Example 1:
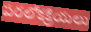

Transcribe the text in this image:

పరలోకక్రియలు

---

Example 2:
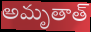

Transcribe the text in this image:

అమృతాత్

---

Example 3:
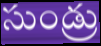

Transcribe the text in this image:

సుండ్రు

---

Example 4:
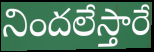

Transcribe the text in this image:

నిందలేస్తారే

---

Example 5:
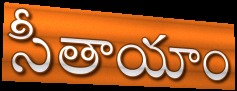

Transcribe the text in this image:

సీతాయాం